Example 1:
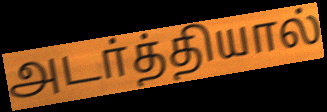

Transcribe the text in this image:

அடர்த்தியால்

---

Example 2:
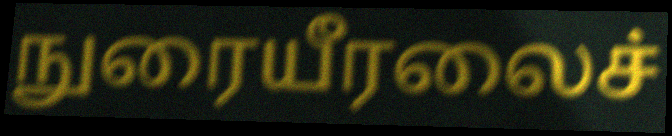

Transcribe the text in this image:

நுரையீரலைச்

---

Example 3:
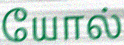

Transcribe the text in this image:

யோல்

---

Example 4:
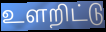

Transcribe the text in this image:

உளறிட்டு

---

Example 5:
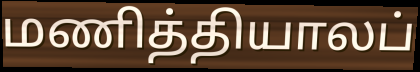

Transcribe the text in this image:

மணித்தியாலப்